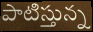
పాటిస్తున్న